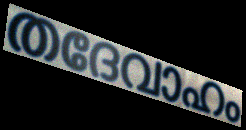
തദേവാഹം